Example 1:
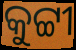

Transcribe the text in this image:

କୁଟ୍ଟୀ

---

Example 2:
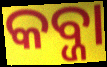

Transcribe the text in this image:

କବ୍ଜା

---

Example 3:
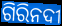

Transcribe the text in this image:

ଗିରିନଦୀ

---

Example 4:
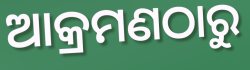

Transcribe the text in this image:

ଆକ୍ରମଣଠାରୁ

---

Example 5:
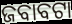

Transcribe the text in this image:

ଜବାବଟା